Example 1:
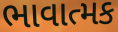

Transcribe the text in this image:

ભાવાત્મક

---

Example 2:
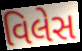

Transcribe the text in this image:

વિલેસ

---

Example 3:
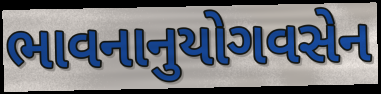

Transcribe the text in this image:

ભાવનાનુયોગવસેન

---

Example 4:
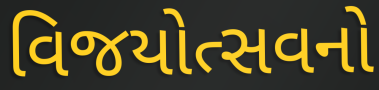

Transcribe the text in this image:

વિજયોત્સવનો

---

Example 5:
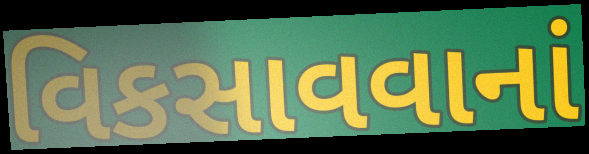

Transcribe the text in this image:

વિકસાવવાનાં